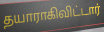
தயாராகிவிட்டார்